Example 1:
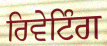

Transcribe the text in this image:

ਰਿਵੇਟਿੰਗ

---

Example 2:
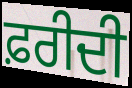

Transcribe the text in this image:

ਫ਼ਰੀਦੀ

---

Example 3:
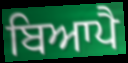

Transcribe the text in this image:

ਬਿਆਪੈ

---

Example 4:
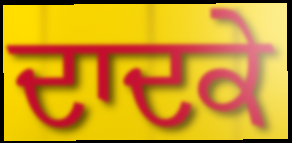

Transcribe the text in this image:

ਦਾਦਕੇ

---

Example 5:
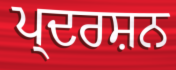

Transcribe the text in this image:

ਪ੍ਦਰਸ਼ਨ